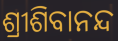
ଶ୍ରୀଶିବାନନ୍ଦ